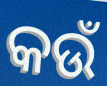
କଉଁ